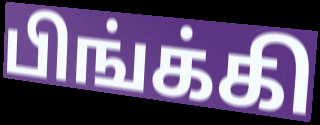
பிங்க்கி